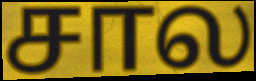
சால